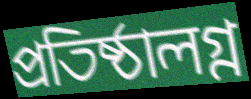
প্রতিষ্ঠালগ্ন